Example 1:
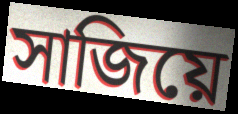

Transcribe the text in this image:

সাজিয়ে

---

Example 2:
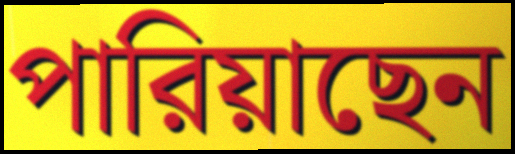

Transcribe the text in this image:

পারিয়াছেন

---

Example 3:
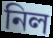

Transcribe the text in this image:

নিল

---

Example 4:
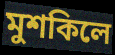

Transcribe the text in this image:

মুশকিলে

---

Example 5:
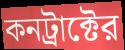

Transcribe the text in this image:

কনট্রাক্টের